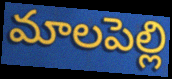
మాలపెల్లి